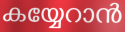
കയ്യേറാൻ